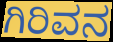
ಗಿರಿವನ